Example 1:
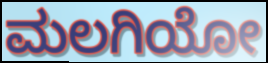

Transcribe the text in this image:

ಮಲಗಿಯೋ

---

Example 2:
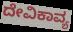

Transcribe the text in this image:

ದೇವಿಕಾವ್ಯ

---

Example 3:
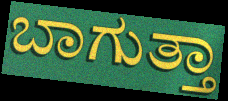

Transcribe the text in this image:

ಬಾಗುತ್ತಾ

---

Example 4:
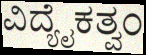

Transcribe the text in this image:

ವಿದ್ಯೈಕತ್ವಂ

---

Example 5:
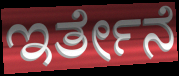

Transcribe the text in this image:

ಇರ್ತೇನೆ